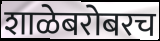
शाळेबरोबरच